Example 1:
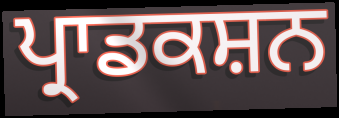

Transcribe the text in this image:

ਪ੍ਰਾਡਕਸ਼ਨ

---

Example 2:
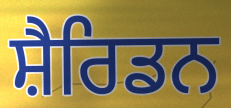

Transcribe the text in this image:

ਸ਼ੈਰਿਡਨ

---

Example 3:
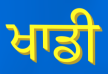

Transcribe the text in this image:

ਖਾਡੀ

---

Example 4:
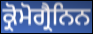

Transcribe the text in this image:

ਕ੍ਰੋਮੋਗ੍ਰੈਨਿਨ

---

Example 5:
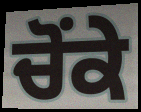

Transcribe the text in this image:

ਚੋਂਕੇ